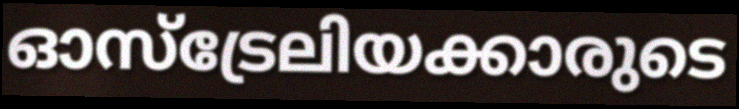
ഓസ്ട്രേലിയക്കാരുടെ